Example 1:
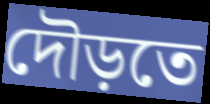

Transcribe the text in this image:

দৌড়তে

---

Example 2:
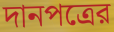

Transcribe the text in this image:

দানপত্রের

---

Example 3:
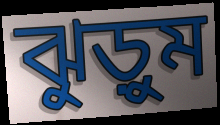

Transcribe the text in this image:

ঝুড়ুম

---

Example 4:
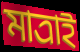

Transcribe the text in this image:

মাত্রাই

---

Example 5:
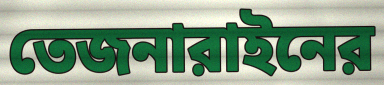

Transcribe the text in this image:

তেজনারাইনের